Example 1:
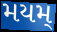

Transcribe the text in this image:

મયમ્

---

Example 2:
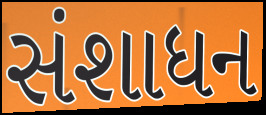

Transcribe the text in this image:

સંશાધન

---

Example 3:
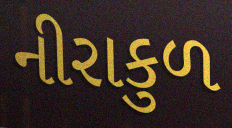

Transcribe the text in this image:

નીરાકુળ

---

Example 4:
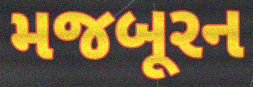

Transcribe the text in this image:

મજબૂરન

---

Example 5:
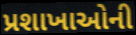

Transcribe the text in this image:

પ્રશાખાઓની